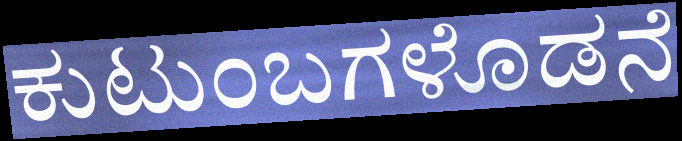
ಕುಟುಂಬಗಳೊಡನೆ